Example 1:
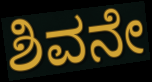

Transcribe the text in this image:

ಶಿವನೇ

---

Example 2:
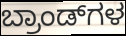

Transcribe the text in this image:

ಬ್ರಾಂಡ್‌ಗಳ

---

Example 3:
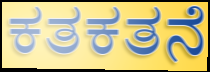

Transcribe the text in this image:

ಕತಕತನೆ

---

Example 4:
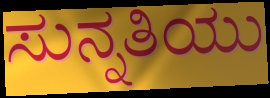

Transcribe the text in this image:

ಸುನ್ನತಿಯು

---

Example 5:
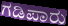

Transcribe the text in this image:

ಗಡಿಪಾರು